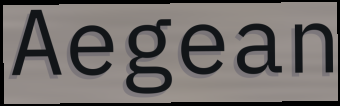
Aegean